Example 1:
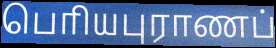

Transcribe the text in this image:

பெரியபுராணப்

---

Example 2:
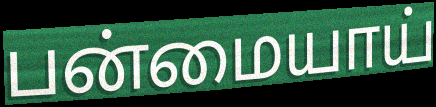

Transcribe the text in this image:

பன்மையாய்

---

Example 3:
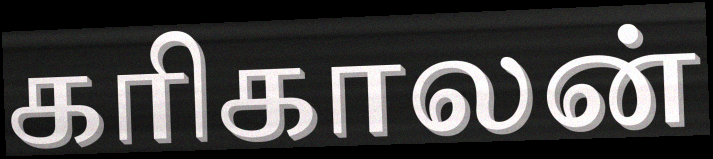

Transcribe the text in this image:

கரிகாலன்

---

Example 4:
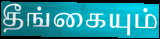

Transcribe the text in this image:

தீங்கையும்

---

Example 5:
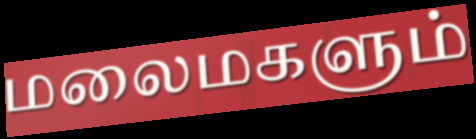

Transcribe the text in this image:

மலைமகளும்